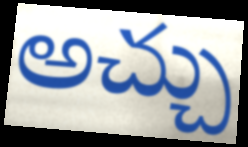
అచ్చు